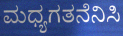
ಮಧ್ಯಗತನೆನಿಸಿ